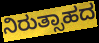
ನಿರುತ್ಸಾಹದ